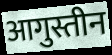
आगुस्तीन